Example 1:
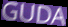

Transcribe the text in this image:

GUDA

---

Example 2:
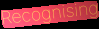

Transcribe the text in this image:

Recognising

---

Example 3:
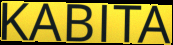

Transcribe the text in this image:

KABITA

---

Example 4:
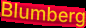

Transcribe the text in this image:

Blumberg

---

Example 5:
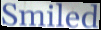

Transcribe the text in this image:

Smiled